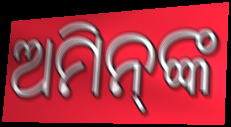
ଅମିନ୍‌ଙ୍କ